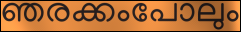
ഞരക്കംപോലും